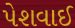
પેશવાઈ